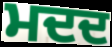
ਮਦਦ